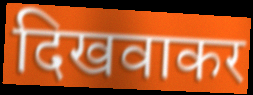
दिखवाकर